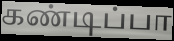
கண்டிப்பா